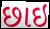
છાઇ